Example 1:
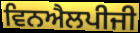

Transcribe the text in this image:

ਵਿਨਐਲਪੀਜੀ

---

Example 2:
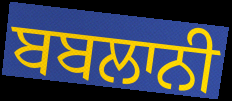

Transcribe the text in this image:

ਬਬਲਾਨੀ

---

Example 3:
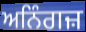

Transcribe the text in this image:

ਅਨਿੰਗਜ਼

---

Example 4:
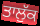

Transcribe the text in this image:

ਤਾਲੁੱਕ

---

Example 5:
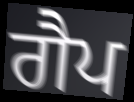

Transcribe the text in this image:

ਗੈਪ